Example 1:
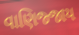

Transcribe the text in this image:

વાણિજ્જાય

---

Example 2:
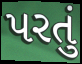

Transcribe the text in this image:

પરતું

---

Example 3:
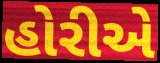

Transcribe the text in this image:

હોરીએ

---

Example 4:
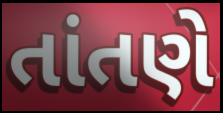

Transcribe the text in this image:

તાંતણે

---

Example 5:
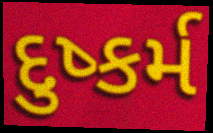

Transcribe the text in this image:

દુષ્કર્મ